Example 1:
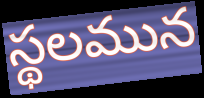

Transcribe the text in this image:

స్థలమున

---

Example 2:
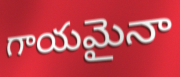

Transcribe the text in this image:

గాయమైనా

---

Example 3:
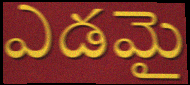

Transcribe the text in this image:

ఎడమై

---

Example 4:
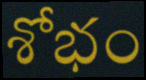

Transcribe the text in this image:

శోభం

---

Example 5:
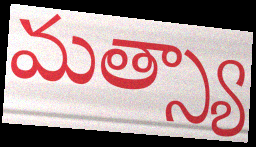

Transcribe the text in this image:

మత్స్యా